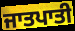
ਜਾਤਪਾਤੀ